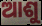
ଆଶୁ